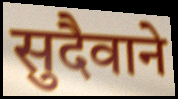
सुदैवाने